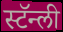
स्टॅन्ली